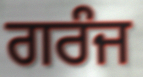
ਗਰੰਜ